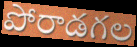
పోరాడగల